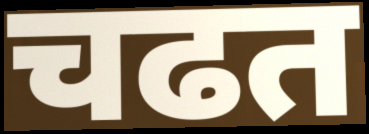
चढत